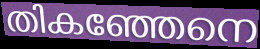
തികഞ്ഞേനെ